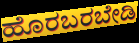
ಹೊರಬರಬೇಡಿ